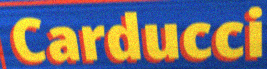
Carducci